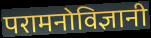
परामनोविज्ञानी